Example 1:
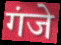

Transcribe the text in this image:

गंजे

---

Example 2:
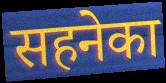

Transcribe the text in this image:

सहनेका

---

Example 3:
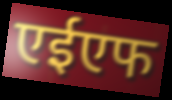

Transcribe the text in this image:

एईएफ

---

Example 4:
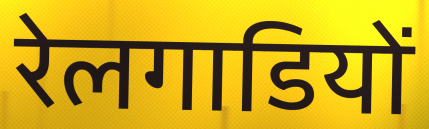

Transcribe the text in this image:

रेलगाडियों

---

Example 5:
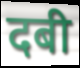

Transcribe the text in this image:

दबी